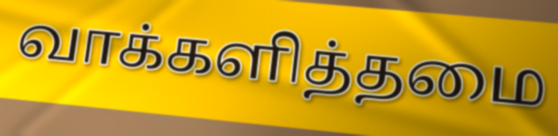
வாக்களித்தமை